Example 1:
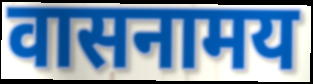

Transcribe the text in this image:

वासनामय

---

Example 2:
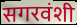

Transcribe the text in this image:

सगरवंशी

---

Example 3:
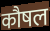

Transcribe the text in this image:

कौषल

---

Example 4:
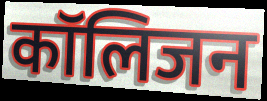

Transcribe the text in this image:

कॉलिजन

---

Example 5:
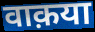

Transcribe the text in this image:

वाक़या